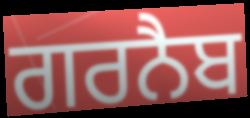
ਗਰਨੈਬ